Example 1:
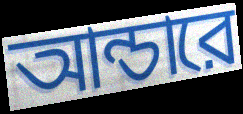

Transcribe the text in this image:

আন্ডারে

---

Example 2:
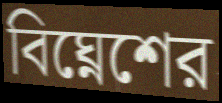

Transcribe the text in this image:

বিঘ্নেশের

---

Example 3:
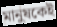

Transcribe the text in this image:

মানুষকেই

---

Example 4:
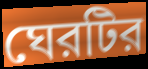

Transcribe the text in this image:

ঘেরটির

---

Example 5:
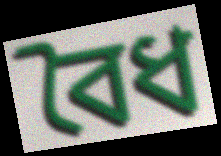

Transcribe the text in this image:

বৈধ